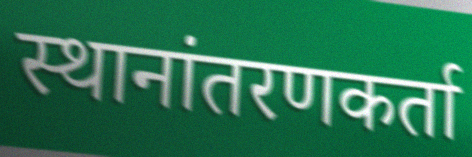
स्थानांतरणकर्ता